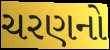
ચરણનો